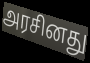
அரசினது